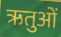
ऋतुओं